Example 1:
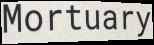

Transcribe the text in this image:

Mortuary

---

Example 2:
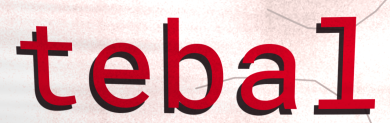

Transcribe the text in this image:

tebal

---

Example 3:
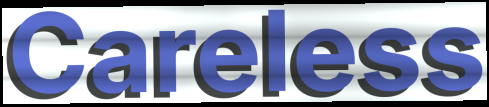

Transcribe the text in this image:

Careless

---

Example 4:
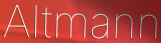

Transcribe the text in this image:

Altmann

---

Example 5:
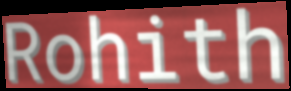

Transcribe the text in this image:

Rohith